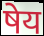
षेय